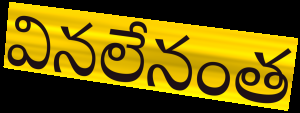
వినలేనంత